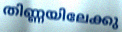
തിണ്ണയിലേക്കു